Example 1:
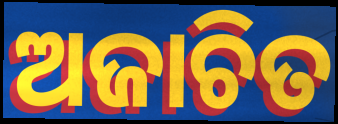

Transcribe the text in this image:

ଅଜାଚିତ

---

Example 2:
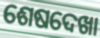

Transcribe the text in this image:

ଶେଷଦେଖା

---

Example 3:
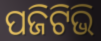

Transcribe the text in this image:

ପଜିଟିଭି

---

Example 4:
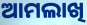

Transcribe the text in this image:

ଆମଲାଖି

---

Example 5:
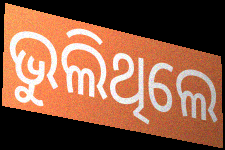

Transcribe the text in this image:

ଭୁଲିଥିଲେ